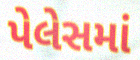
પેલેસમાં